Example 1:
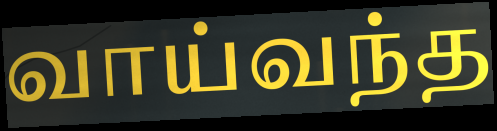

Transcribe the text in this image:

வாய்வந்த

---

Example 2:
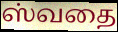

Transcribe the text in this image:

ஸ்வதை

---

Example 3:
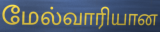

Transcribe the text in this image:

மேல்வாரியான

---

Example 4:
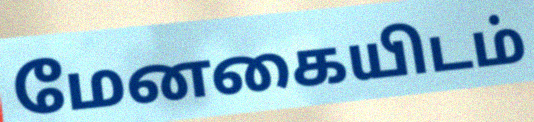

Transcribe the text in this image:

மேனகையிடம்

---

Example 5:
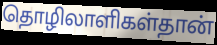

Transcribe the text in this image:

தொழிலாளிகள்தான்